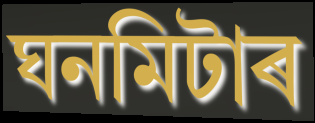
ঘনমিটাৰ